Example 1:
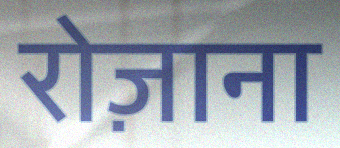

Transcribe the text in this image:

रोज़ाना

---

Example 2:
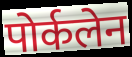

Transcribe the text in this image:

पोर्कलेन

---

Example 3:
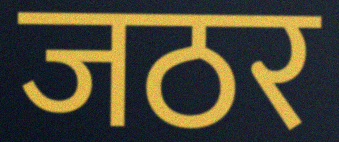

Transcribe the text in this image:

जठर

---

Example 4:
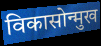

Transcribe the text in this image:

विकासोन्मुख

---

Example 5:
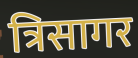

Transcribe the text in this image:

त्रिसागर